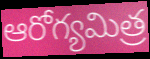
ఆరోగ్యమిత్ర